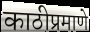
काठीप्रमाणे